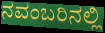
ನವಂಬರಿನಲ್ಲಿ